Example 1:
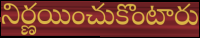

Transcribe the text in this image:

నిర్ణయించుకొంటారు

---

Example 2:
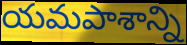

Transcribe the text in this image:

యమపాశాన్ని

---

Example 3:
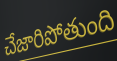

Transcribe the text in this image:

చేజారిపోతుంది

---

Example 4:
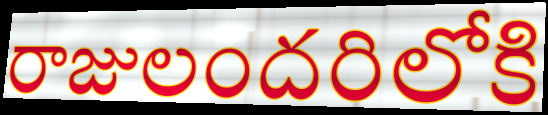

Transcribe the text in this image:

రాజులందరిలోకి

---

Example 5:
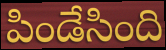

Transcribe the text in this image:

పిండేసింది